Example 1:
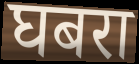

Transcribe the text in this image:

घबरा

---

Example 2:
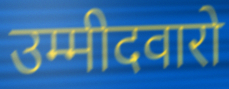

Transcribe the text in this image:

उम्मीदवारो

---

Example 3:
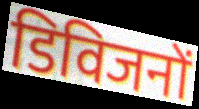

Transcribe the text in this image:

डिविजनों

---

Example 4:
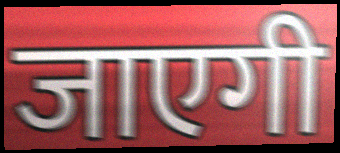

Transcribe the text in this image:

जाएगी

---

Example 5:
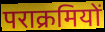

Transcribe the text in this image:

पराक्रमियों